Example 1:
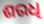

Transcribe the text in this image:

ଶରଧି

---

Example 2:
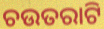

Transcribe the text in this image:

ଚଉତରାଟି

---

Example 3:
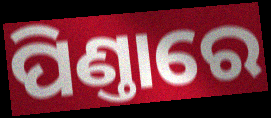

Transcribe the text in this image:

ପିଣ୍ତାରେ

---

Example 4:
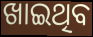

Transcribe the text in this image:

ଖାଇଥିବ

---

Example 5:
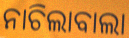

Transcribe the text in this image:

ନାଚିଲାବାଲା